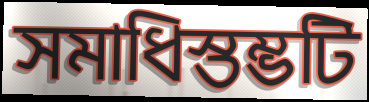
সমাধিস্তম্ভটি